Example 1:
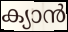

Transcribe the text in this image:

ക്യാൻ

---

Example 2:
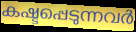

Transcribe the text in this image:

കഷ്ടപ്പെടുന്നവർ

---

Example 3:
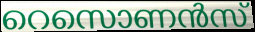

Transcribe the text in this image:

റെസൊണൻസ്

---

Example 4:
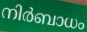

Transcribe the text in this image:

നിർബാധം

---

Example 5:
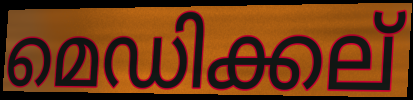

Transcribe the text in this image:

മെഡിക്കല്